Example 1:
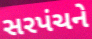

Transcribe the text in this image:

સરપંચને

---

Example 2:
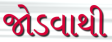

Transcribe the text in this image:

જોડવાથી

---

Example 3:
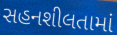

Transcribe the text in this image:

સહનશીલતામાં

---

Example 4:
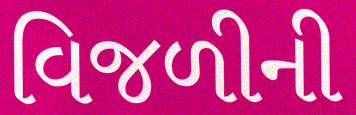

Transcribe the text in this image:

વિજળીની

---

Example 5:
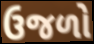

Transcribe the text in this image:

ઉજળો